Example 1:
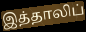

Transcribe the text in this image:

இத்தாலிப்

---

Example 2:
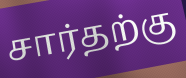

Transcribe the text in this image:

சார்தற்கு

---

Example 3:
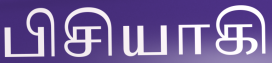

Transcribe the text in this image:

பிசியாகி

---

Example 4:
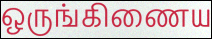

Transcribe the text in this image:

ஒருங்கிணைய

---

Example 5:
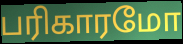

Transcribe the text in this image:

பரிகாரமோ